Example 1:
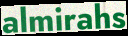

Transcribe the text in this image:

almirahs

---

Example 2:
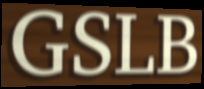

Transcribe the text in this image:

GSLB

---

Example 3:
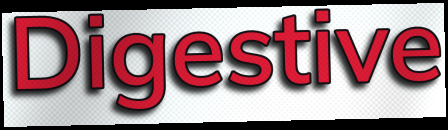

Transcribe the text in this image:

Digestive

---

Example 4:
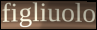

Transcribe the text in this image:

figliuolo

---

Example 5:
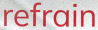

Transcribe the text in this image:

refrain